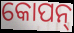
କୋପନ୍